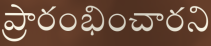
ప్రారంభించారని